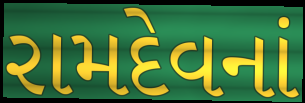
રામદેવનાં